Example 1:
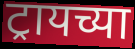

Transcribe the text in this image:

ट्रायच्या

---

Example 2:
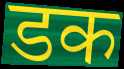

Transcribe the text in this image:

डक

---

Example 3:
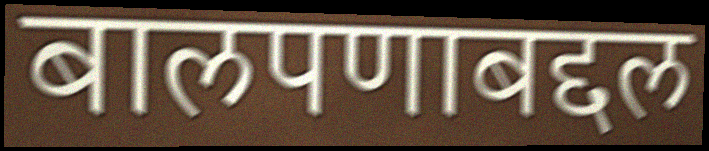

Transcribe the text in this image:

बालपणाबद्दल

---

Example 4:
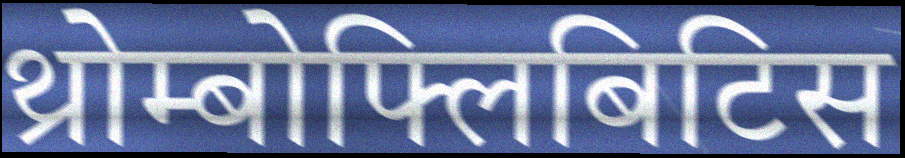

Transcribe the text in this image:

थ्रोम्बोफ्लिबिटिस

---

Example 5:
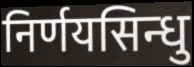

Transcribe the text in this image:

निर्णयसिन्धु